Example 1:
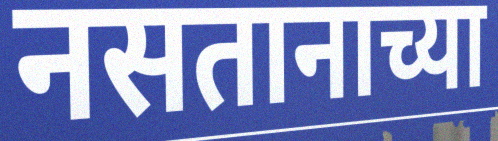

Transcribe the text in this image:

नसतानाच्या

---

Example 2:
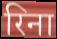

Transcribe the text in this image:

रिना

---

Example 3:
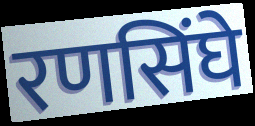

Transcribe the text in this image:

रणसिंघे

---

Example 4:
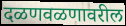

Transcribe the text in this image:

दळणवळणावरील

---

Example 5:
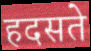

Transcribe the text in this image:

हदसते